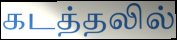
கடத்தலில்